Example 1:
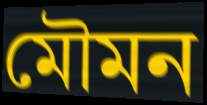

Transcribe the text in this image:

মৌমন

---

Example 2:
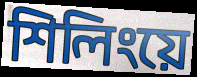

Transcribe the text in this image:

শিলিংয়ে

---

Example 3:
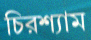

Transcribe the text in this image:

চিরশ্যাম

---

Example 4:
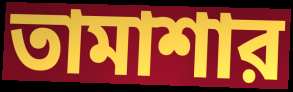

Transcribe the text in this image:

তামাশার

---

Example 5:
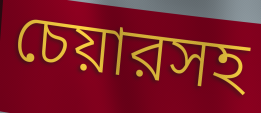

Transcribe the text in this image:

চেয়ারসহ